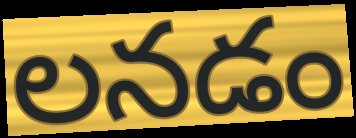
లనడం